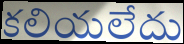
కలియలేదు